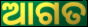
ଆଗତ